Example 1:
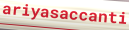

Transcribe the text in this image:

ariyasaccanti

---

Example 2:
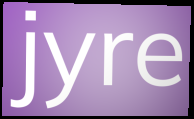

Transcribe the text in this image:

jyre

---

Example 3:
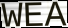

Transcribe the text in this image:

WEA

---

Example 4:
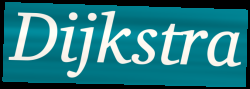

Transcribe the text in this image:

Dijkstra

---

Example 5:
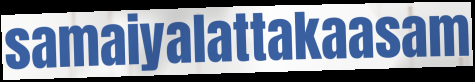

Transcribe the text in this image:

samaiyalattakaasam